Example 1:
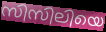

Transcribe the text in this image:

സിസിലിയെ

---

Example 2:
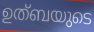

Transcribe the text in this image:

ഉത്ബയുടെ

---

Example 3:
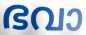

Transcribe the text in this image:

ഭവാ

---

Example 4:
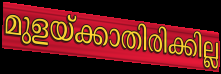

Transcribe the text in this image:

മുളയ്ക്കാതിരിക്കില്ല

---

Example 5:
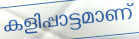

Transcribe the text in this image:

കളിപ്പാട്ടമാണ്